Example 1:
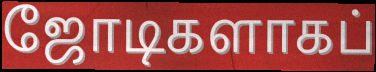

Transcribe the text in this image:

ஜோடிகளாகப்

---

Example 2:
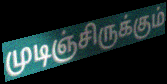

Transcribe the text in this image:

முடிஞ்சிருக்கும்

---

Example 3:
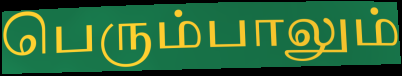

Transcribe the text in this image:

பெரும்பாலும்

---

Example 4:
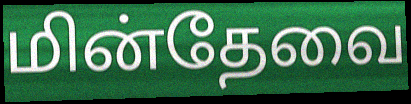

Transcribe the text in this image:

மின்தேவை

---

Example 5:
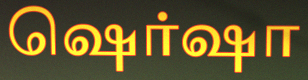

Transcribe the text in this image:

ஷெர்ஷா